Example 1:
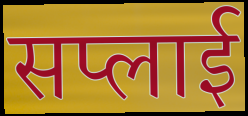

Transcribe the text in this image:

सप्‍लाई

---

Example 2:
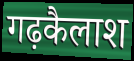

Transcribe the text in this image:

गढ़कैलाश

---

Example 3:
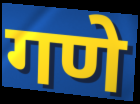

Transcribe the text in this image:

गणे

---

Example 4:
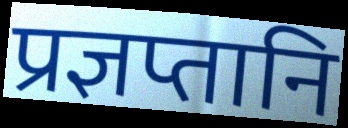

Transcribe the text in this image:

प्रज्ञप्तानि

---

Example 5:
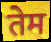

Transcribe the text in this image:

तेम